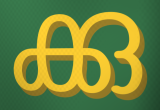
ക്കു